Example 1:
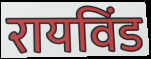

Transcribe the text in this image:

रायविंड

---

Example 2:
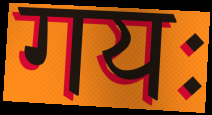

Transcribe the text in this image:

गयः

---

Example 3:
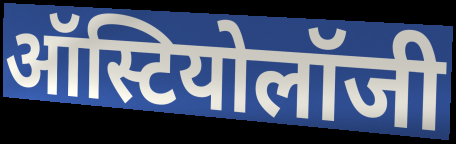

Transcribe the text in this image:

ऑस्टियोलॉजी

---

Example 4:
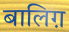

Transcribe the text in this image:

बालिग़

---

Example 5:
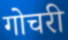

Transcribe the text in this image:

गोचरी